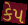
કેપ